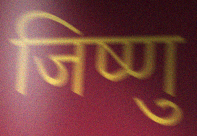
जिष्णु